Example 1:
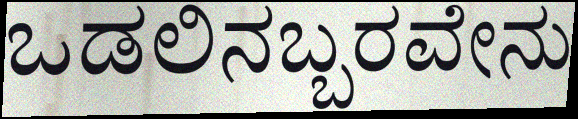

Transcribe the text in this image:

ಒಡಲಿನಬ್ಬರವೇನು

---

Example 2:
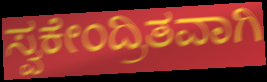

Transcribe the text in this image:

ಸ್ವಕೇಂದ್ರಿತವಾಗಿ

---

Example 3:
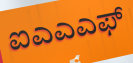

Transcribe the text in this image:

ಐಎಎಎಫ್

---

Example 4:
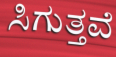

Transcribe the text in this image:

ಸಿಗುತ್ತವೆ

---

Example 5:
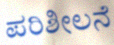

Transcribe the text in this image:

ಪರಿಶೀಲನೆ